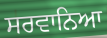
ਸਰਵਾਨਿਆ